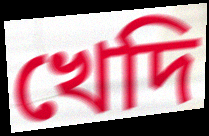
খেদি